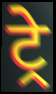
ट्रे